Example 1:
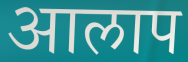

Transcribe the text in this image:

आलाप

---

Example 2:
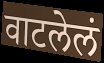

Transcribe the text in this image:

वाटलेलं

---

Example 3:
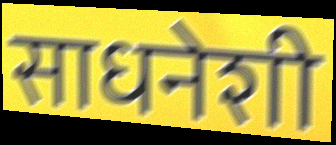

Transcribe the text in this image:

साधनेशी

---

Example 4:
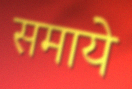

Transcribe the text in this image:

समाये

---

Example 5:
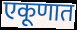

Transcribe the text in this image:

एकूणात